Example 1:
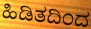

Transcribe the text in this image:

ಹಿಡಿತದಿಂದ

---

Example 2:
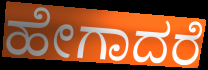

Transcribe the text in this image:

ಹೇಗಾದರೆ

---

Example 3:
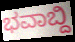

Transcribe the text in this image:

ಭವಾಬ್ದಿ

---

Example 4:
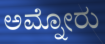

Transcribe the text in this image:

ಅಮ್ನೋರು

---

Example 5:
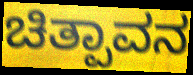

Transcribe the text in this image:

ಚಿತ್ಪಾವನ